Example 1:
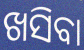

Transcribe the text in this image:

ଖସିବା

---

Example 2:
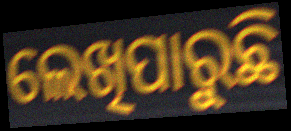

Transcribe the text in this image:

ଲେଖିପାରୁଛି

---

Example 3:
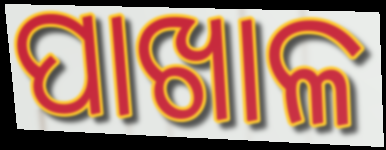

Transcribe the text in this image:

ପାଖାଳ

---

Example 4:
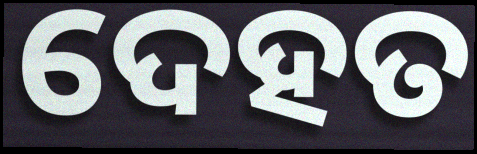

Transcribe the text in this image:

ଦେହତ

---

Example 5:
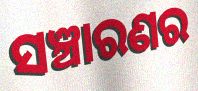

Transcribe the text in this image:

ସଞ୍ଚାରଣର